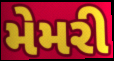
મેમરી